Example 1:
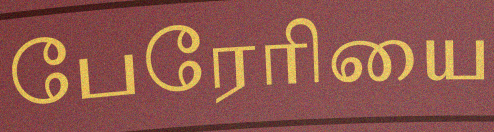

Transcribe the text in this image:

பேரேரியை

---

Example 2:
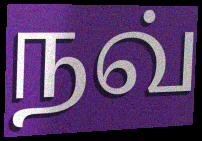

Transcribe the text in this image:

நவ்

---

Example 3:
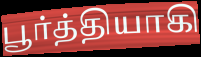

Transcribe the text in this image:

பூர்த்தியாகி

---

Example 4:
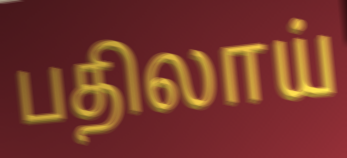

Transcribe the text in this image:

பதிலாய்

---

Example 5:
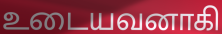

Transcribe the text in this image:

உடையவனாகி